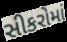
સીકરોમાં